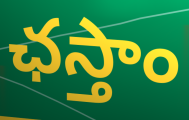
ఛస్తాం